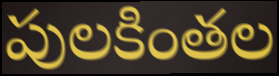
పులకింతల